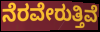
ನೆರವೇರುತ್ತಿವೆ